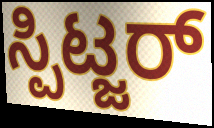
ಸ್ಪಿಟ್ಜರ್